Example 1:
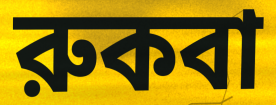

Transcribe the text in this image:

রুকবা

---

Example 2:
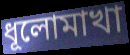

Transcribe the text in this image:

ধূলোমাখা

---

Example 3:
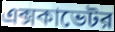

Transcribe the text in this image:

এক্সকাভেটর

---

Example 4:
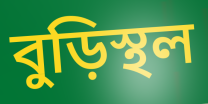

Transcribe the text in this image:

বুড়িস্থল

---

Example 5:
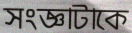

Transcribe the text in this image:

সংজ্ঞাটাকে